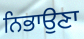
ਨਿਭਾਉਣਾ